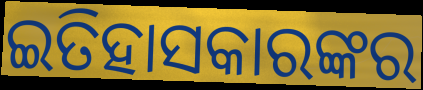
ଇତିହାସକାରଙ୍କର